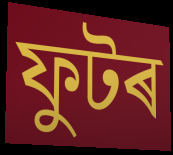
ফুটৰ